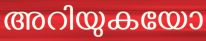
അറിയുകയോ